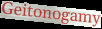
Geitonogamy